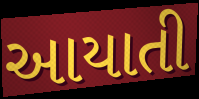
આયાતી